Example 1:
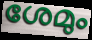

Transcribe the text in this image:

ശേമും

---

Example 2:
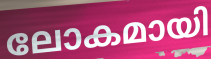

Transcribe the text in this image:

ലോകമായി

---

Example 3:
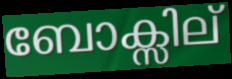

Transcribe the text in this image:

ബോക്സില്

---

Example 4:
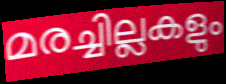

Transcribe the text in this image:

മരച്ചില്ലകളും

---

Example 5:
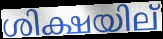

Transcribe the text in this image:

ശിക്ഷയില്